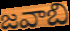
జవాబి